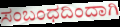
ಸಂಬಂಧದಿಂದಾಗಿ